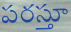
పరస్తూ